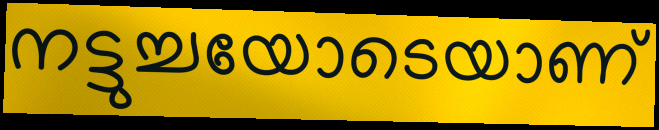
നട്ടുച്ചയോടെയാണ്